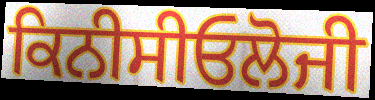
ਕਿਨੀਸੀਓਲੋਜੀ